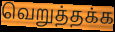
வெறுத்தக்க